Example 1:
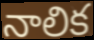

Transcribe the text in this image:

నాలిక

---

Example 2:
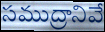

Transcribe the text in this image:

సముద్రానివే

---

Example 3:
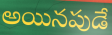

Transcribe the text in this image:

అయినపుడే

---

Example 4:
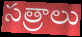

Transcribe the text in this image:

సత్రాలు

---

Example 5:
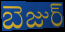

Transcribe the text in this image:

బెజుర్